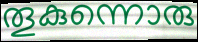
തൂകുന്നൊരു